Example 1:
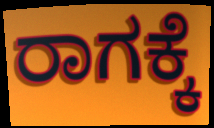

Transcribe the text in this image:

ರಾಗಕ್ಕೆ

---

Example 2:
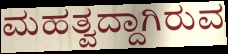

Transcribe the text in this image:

ಮಹತ್ವದ್ದಾಗಿರುವ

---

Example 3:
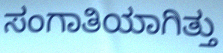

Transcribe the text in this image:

ಸಂಗಾತಿಯಾಗಿತ್ತು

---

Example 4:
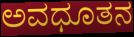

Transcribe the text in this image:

ಅವಧೂತನ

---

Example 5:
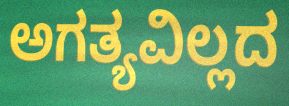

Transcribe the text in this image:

ಅಗತ್ಯವಿಲ್ಲದ